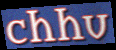
chhu